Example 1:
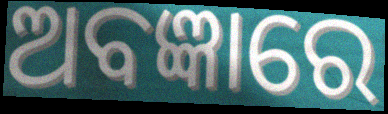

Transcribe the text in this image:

ଅବଜ୍ଞାରେ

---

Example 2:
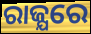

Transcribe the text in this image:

ରାଜ୍ଯରେ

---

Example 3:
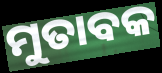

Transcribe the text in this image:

ମୁତାବକ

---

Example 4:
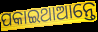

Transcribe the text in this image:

ପକାଇଥାଆନ୍ତେ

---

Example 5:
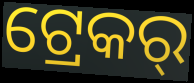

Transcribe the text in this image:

ଟ୍ରେକର୍